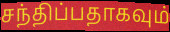
சந்திப்பதாகவும்